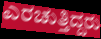
ಎರಚುತ್ತಿದ್ದರು